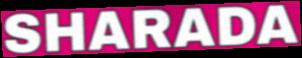
SHARADA